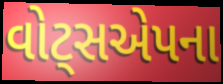
વોટ્સએપના